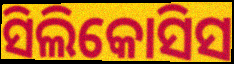
ସିଲିକୋସିସ